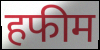
हफीम